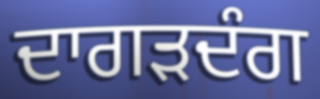
ਦਾਗੜਦੰਗ